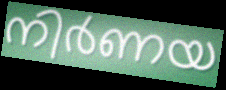
നിർണയ